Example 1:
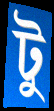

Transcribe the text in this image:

টু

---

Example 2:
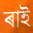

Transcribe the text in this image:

ৰাই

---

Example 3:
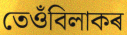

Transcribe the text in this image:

তেওঁবিলাকৰ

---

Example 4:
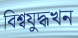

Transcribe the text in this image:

বিশ্বযুদ্ধখন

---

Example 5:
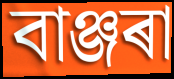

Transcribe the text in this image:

বাঞ্জৰা